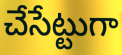
చేసేట్టుగా